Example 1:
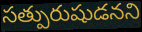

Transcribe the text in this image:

సత్పురుషుడనని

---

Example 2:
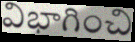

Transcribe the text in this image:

విభాగించి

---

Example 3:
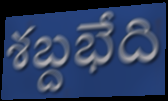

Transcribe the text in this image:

శబ్దభేది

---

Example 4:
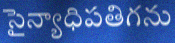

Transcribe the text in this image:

సైన్యాధిపతిగను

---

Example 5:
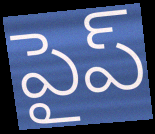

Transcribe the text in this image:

పైప్